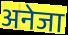
अनेजा